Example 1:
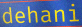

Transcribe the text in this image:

dehani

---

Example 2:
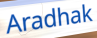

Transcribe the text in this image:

Aradhak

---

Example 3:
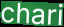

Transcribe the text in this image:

chari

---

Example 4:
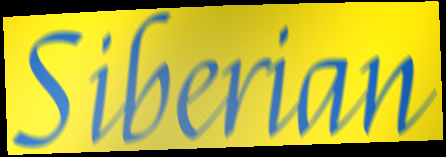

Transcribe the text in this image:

Siberian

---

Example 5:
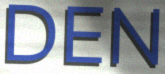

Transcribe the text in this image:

DEN